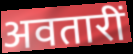
अवतारीं